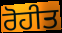
ਰੋਹੀਤ